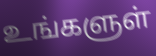
உங்களுள்